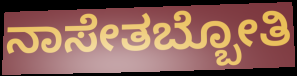
ನಾಸೇತಬ್ಬೋತಿ